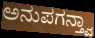
ಅನುಪಗನ್ತ್ವಾ